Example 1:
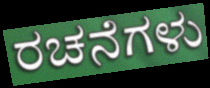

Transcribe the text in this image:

ರಚನೆಗಳು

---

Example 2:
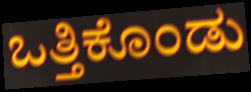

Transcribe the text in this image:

ಒತ್ತಿಕೊಂಡು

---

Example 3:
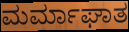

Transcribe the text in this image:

ಮರ್ಮಾಘಾತ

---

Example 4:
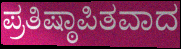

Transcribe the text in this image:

ಪ್ರತಿಷ್ಠಾಪಿತವಾದ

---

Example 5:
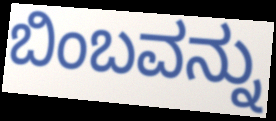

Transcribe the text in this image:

ಬಿಂಬವನ್ನು